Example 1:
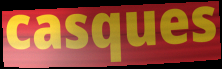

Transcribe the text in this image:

casques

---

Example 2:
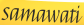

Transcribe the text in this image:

samawati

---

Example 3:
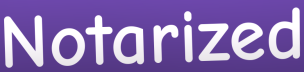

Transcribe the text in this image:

Notarized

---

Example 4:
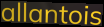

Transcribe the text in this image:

allantois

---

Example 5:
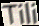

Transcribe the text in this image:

Tili